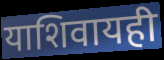
याशिवायही